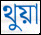
থুয়া